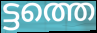
ട്ടത്തെ